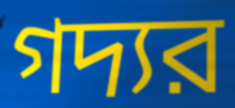
গদ্যর